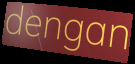
dengan